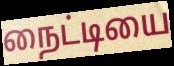
நைட்டியை